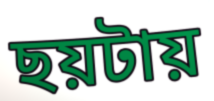
ছয়টায়